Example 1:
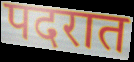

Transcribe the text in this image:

पदरात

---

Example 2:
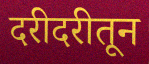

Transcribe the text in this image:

दरीदरीतून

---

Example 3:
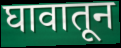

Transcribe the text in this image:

घावातून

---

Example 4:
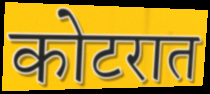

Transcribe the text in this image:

कोटरात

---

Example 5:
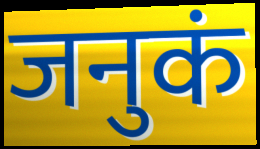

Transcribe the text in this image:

जनुकं